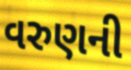
વરુણની